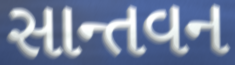
સાન્તવન